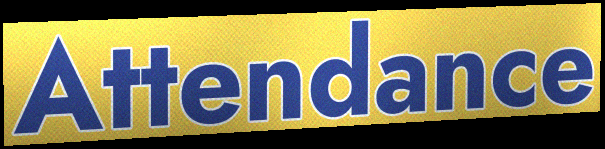
Attendance